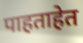
पाहताहेत